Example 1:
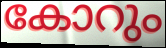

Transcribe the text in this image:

കോറും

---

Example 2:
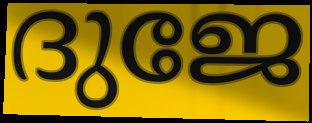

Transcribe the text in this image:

ദുജേ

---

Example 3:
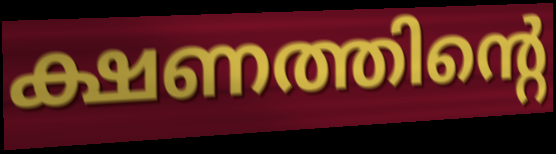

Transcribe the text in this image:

ക്ഷണത്തിന്റെ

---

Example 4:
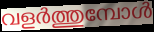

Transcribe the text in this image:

വളർത്തുമ്പോൾ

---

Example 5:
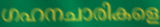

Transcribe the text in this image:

ഗഹനചാരികളെ